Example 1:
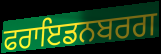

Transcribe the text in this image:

ਫਰਾਇਡਨਬਰਗ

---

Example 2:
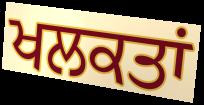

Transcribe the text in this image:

ਖਲਕਤਾਂ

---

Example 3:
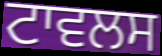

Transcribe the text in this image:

ਟਾਵਲਸ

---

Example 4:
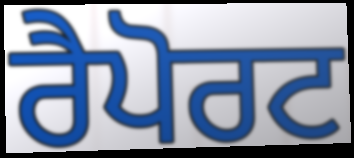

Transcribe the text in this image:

ਰੈਪੋਰਟ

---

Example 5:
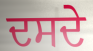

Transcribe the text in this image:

ਦਸਦੇ